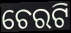
ଚେରଟି